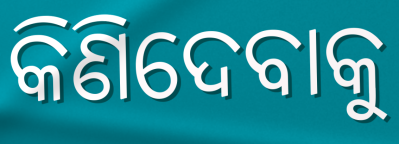
କିଣିଦେବାକୁ